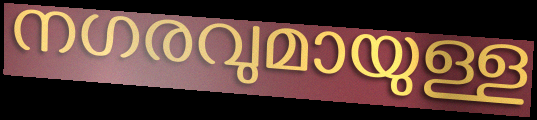
നഗരവുമായുള്ള